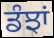
ਡੰਝਾਂ